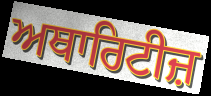
ਅਥਾਰਿਟੀਜ਼